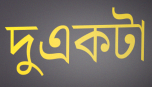
দুএকটা